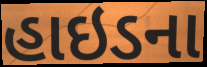
હાઇડના